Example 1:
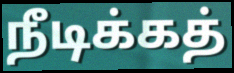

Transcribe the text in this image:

நீடிக்கத்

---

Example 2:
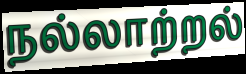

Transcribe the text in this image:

நல்லாற்றல்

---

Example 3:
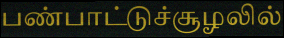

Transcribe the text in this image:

பண்பாட்டுச்சூழலில்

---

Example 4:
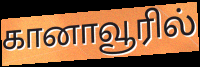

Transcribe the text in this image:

கானாவூரில்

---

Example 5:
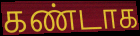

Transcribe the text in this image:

கண்டாக